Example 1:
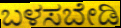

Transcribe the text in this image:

ಬಳಸಬೇಡಿ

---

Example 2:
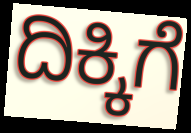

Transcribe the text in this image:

ದಿಕ್ಕಿಗೆ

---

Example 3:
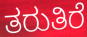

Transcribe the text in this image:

ತರುತಿರೆ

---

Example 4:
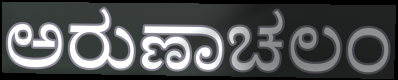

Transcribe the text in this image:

ಅರುಣಾಚಲಂ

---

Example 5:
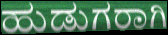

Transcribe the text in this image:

ಹುಡುಗರಾಗಿ